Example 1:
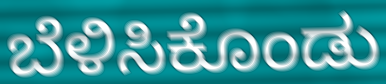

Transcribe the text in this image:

ಬೆಳಿಸಿಕೊಂಡು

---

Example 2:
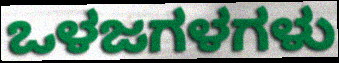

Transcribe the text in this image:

ಒಳಜಗಳಗಳು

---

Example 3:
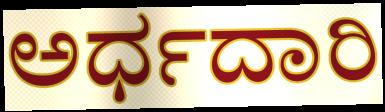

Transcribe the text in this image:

ಅರ್ಧದಾರಿ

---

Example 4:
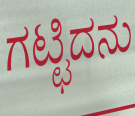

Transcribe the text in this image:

ಗಟ್ಟಿದನು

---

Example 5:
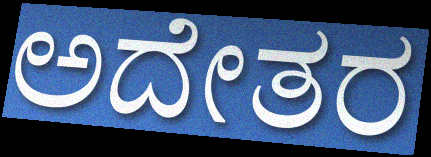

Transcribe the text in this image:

ಅದೇತರ